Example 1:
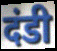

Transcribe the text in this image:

दंडी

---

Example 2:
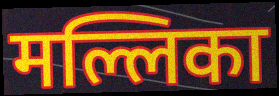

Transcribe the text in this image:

मल्लिका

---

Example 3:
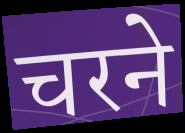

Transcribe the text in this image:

चरने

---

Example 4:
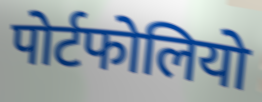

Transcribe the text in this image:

पोर्टफोलियो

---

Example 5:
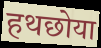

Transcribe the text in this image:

हथछोया